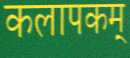
कलापकम्